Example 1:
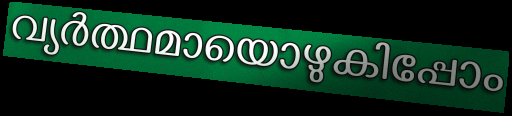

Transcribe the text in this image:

വ്യർത്ഥമായൊഴുകിപ്പോം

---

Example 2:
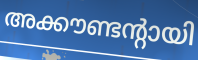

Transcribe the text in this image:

അക്കൗണ്ടന്റായി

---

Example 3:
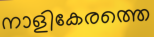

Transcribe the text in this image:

നാളികേരത്തെ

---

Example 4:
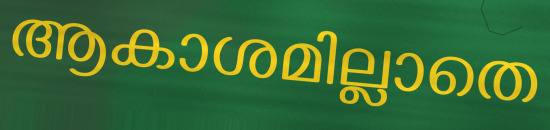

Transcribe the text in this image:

ആകാശമില്ലാതെ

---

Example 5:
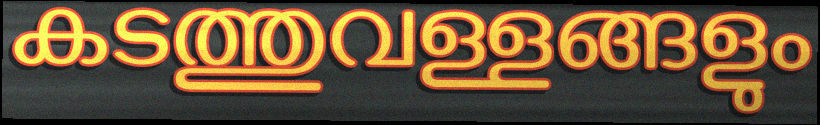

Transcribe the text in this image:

കടത്തുവള്ളങ്ങളും